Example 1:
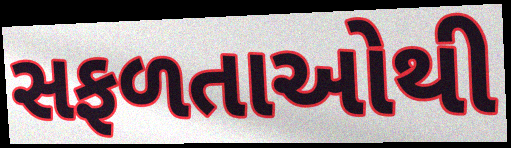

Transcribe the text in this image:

સફળતાઓથી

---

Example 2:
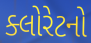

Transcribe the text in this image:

ક્લોરેટનો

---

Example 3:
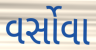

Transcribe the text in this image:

વર્સોવા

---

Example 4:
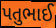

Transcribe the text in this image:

પતુભાઈ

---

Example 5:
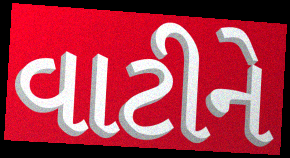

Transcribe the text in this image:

વાટીને